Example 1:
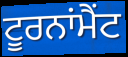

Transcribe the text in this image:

ਟੂਰਨਾਂਮੈਂਟ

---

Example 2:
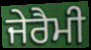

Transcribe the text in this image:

ਜੇਰੈਮੀ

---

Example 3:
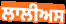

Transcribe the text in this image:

ਲਾਲੀਅਸ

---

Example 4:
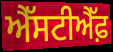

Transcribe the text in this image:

ਐੱਸਟੀਐੱਫ਼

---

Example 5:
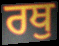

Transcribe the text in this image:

ਰਥੁ